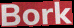
Bork